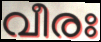
വീരഃ